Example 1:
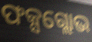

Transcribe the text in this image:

ଫକ୍ସଗ୍ଲୋଭ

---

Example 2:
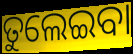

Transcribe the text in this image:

ତୁଲେଇବା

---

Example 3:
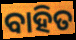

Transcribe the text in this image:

ବାହିତ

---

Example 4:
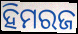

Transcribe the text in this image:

ହିମରଜ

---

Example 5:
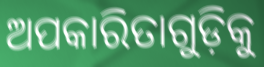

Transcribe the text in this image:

ଅପକାରିତାଗୁଡ଼ିକୁ